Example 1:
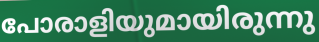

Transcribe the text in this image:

പോരാളിയുമായിരുന്നു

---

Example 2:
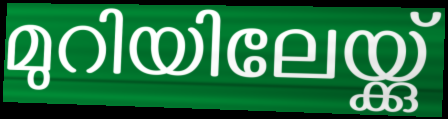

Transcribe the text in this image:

മുറിയിലേയ്ക്കു്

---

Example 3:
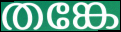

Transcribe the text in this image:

തങ്കേ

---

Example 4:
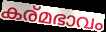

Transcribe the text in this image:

കര്മഭാവം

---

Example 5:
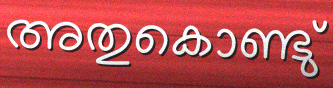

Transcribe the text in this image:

അതുകൊണ്ടു്